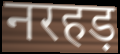
नरहड़